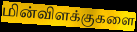
மின்விளக்குகளை